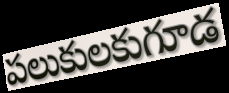
పలుకులకుగూడ